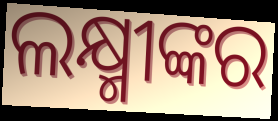
ଲକ୍ଷ୍ମୀଙ୍କର